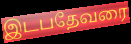
இடபதேவரை